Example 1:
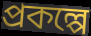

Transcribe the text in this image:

প্রকল্পে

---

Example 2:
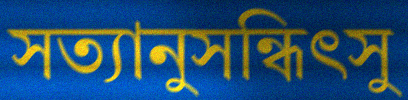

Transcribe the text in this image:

সত্যানুসন্ধিৎসু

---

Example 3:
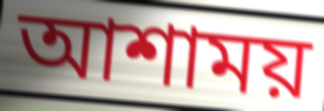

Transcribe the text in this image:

আশাময়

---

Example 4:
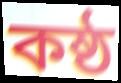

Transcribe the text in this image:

কষ্ঠ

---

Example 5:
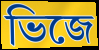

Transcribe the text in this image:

ভিজে